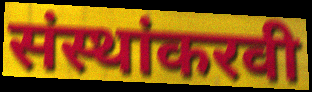
संस्थांकरवी